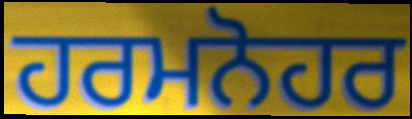
ਹਰਮਨੋਹਰ